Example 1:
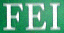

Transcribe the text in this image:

FEI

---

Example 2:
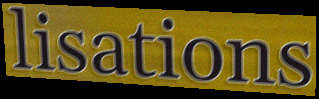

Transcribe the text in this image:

lisations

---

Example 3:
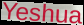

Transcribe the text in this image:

Yeshua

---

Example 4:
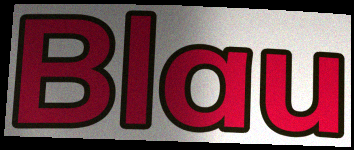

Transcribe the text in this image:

Blau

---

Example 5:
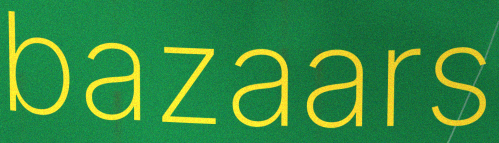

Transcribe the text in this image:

bazaars